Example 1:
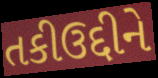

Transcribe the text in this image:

તકીઉદ્દીને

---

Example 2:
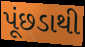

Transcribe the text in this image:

પૂંછડાથી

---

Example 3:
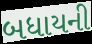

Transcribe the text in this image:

બધાયની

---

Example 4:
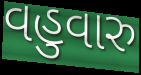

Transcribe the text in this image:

વહુવારુ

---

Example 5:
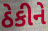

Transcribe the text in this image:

ઠેકીને